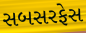
સબસરફેસ